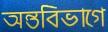
অন্তবিভাগে